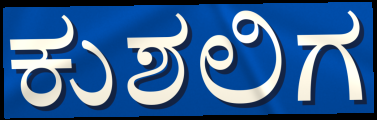
ಕುಶಲಿಗ